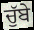
ਚੁੱਬੇ